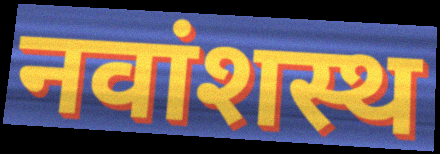
नवांशस्थ